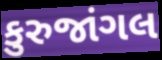
કુરુજાંગલ